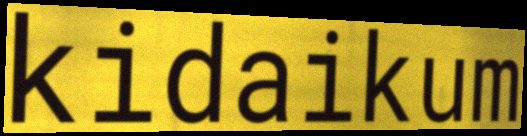
kidaikum